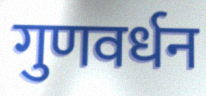
गुणवर्धन